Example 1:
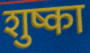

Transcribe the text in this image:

शुष्का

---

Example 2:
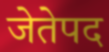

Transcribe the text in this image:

जेतेपद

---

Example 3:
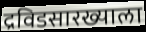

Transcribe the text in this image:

द्रविडसारख्याला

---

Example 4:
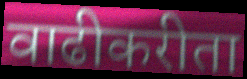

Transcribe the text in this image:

वाढीकरीता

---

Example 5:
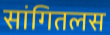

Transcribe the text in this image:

सांगितलस